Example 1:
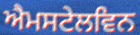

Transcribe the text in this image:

ਐਮਸਟੇਲਵਿਨ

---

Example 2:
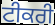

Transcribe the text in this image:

ਟੀਕਰੀ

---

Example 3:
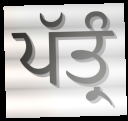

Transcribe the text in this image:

ਪੱਤ੍ਰੰ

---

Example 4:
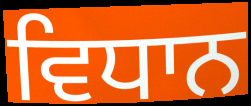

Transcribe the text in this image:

ਵਿਧਾਨ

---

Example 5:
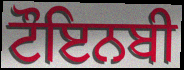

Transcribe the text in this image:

ਟੌਇਨਬੀ